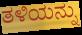
ತಳಿಯನ್ನು